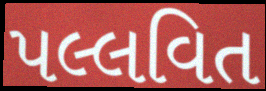
પલ્લવિત